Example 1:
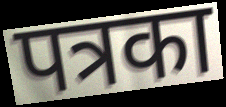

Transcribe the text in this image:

पत्रका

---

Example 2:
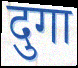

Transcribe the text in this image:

दुगा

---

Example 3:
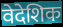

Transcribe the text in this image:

वेदेशिक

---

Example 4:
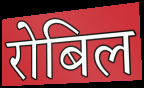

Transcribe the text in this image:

रोबिल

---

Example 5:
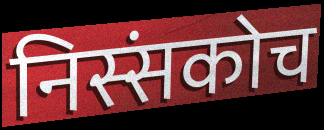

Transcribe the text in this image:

निस्संकोच